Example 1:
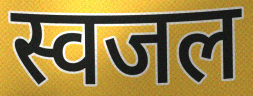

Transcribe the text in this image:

स्वजल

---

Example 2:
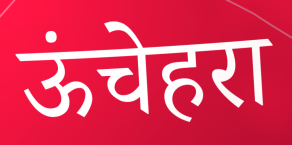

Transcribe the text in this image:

ऊंचेहरा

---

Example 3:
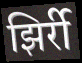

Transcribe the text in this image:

झिर्री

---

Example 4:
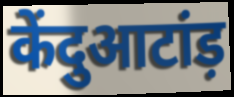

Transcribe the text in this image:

केंदुआटांड़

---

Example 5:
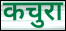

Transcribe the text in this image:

कचुरा